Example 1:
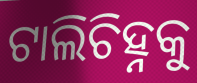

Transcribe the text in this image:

ଟାଲିଚିହ୍ନକୁ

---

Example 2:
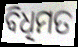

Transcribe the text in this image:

ବିଧିମତ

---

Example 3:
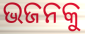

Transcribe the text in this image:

ଭଜନକୁ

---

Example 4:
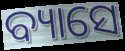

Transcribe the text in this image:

ବ୍ୟାସେ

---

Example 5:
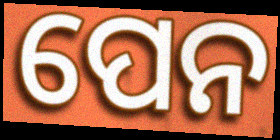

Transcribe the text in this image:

ପେନ